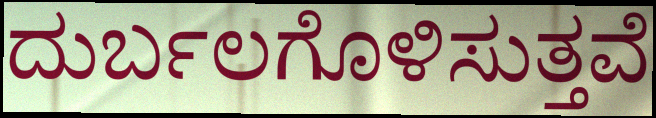
ದುರ್ಬಲಗೊಳಿಸುತ್ತವೆ